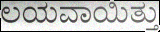
ಲಯವಾಯಿತ್ತು